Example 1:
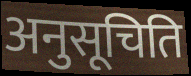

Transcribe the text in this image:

अनुसूचिति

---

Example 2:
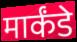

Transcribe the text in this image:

मार्कंडे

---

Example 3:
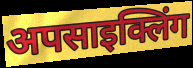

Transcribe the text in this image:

अपसाइक्लिंग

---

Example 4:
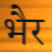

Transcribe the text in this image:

भैर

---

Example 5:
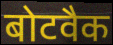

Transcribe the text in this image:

बोटवैक